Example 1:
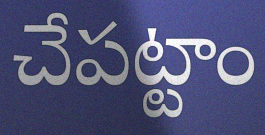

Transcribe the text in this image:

చేపట్టాం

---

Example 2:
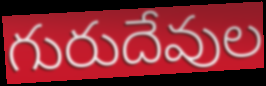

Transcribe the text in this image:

గురుదేవుల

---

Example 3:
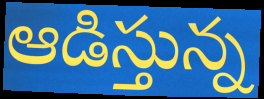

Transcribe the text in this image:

ఆడిస్తున్న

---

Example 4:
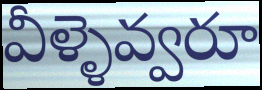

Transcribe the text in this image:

వీళ్ళెవ్వరూ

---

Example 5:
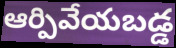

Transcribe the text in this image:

ఆర్పివేయబడ్డ